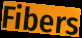
Fibers